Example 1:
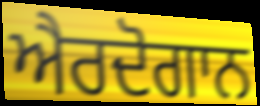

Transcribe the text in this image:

ਐਰਦੋਗਾਨ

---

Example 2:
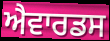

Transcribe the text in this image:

ਐਵਾਰਡਸ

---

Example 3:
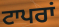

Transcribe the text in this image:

ਟਾਪਰਾਂ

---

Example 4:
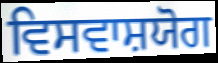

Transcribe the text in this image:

ਵਿਸਵਾਸ਼ਯੋਗ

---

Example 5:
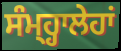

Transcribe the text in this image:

ਸੰਮ੍ਹ੍ਹਾਲੇਹਾਂ